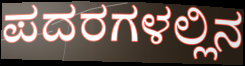
ಪದರಗಳಲ್ಲಿನ